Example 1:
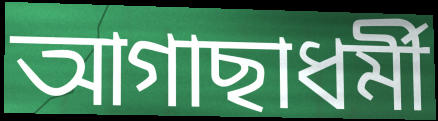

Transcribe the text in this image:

আগাছাধর্মী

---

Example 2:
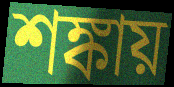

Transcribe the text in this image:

শঙ্কায়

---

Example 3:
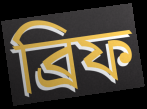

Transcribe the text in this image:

ব্রিফ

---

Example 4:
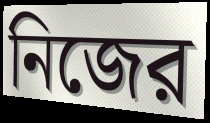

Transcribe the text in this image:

নিজের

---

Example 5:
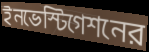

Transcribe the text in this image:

ইনভেস্টিগেশনের